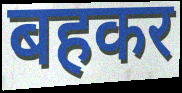
बहकर